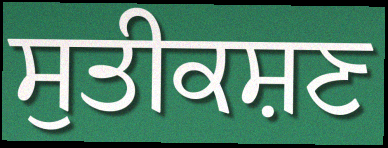
ਸੁਤੀਕਸ਼ਣ